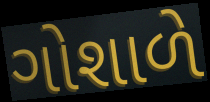
ગોશાળે